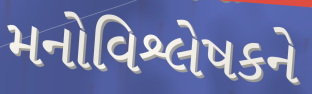
મનોવિશ્લેષકને